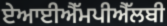
ਏਆਈਐੱਮਪੀਐੱਲਬੀ